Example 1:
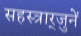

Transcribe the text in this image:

सहस्त्रार्जुनें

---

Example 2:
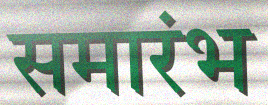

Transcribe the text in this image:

समारंभ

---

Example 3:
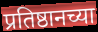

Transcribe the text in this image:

प्रतिष्ठानच्या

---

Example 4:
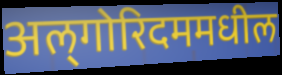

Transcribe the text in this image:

अल्गोरिदममधील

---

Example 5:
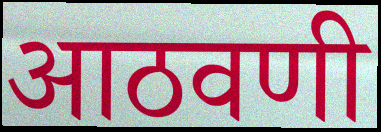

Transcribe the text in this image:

आठवणी